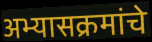
अभ्यासक्रमांचे